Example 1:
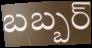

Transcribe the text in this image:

బబ్బర్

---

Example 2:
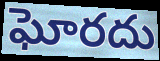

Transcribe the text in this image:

ఘోరదు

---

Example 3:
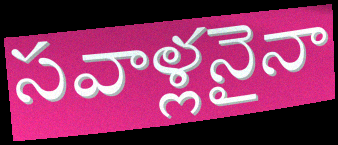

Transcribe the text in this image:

సవాళ్లనైనా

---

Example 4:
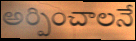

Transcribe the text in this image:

అర్పించాలనే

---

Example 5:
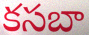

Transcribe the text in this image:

కసబా